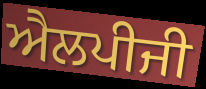
ਐਲਪੀਜੀ